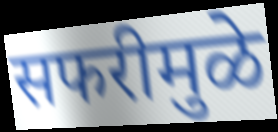
सफरीमुळे